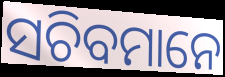
ସଚିବମାନେ